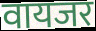
वायजर